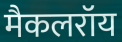
मैकलरॉय